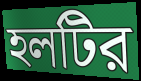
হলটির